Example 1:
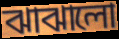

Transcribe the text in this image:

ঝাঝালো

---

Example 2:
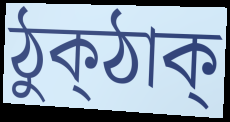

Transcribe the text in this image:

ঠুক্ঠাক্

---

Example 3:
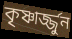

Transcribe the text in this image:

কৃষ্ণার্জ্জুন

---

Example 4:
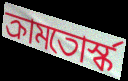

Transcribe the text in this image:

ক্রামতোর্স্ক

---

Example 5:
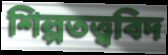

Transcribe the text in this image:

শিল্পতত্ত্ববিদ